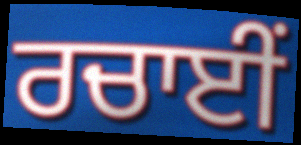
ਰਚਾਈਂ